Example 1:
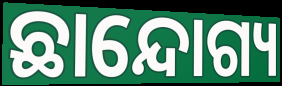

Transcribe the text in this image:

ଛାନ୍ଦୋଗ୍ୟ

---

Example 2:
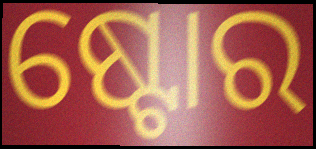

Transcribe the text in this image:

ଷ୍ଟୋର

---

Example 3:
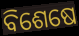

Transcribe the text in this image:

ବିଶେଷେ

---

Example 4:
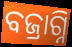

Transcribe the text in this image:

ବଜ୍ରାଗ୍ନି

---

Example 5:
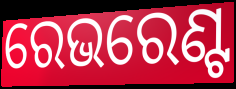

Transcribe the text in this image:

ରେଭରେଣ୍ଟ